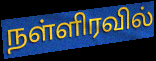
நள்ளிரவில்